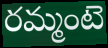
రమ్మంటె